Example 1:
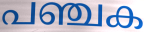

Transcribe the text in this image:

പഞ്ചക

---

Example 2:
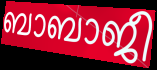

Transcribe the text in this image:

ബാബാജീ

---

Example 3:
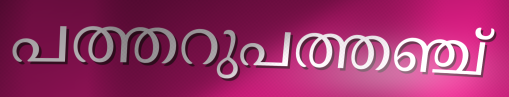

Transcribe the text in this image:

പത്തറുപത്തഞ്ച്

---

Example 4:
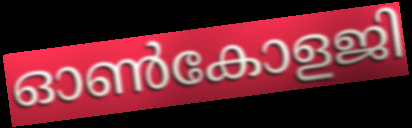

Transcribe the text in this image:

ഓൺകോളജി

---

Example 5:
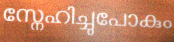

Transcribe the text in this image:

സ്നേഹിച്ചുപോകും